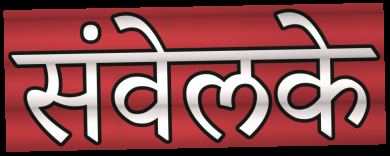
संवेलके